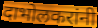
दाभोलकरांनी